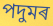
পদুমৰ